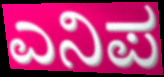
ಎನಿಪ